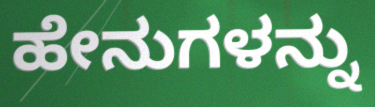
ಹೇನುಗಳನ್ನು